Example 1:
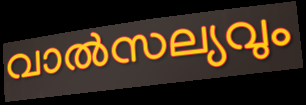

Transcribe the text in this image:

വാൽസല്യവും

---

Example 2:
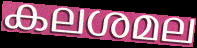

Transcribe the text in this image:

കലശമല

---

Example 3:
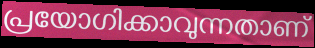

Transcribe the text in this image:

പ്രയോഗിക്കാവുന്നതാണ്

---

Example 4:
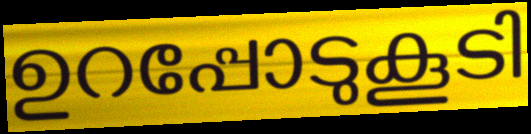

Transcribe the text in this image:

ഉറപ്പോടുകൂടി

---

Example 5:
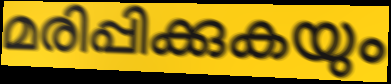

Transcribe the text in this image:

മരിപ്പിക്കുകയും